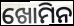
ଖୋମିନ